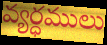
వ్యర్ధములు